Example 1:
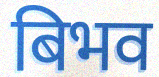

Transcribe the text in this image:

बिभव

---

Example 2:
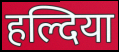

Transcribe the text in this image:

हल्दिया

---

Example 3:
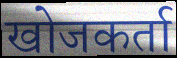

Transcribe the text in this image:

खोजकर्ता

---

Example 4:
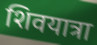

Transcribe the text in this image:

शिवयात्रा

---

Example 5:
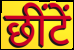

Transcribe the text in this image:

छींटें